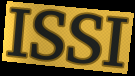
ISSI